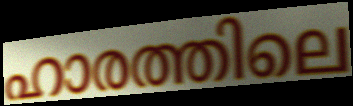
ഹാരത്തിലെ